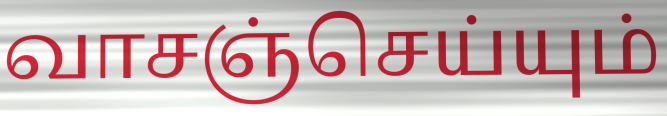
வாசஞ்செய்யும்